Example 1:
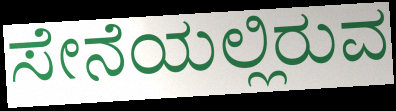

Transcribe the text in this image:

ಸೇನೆಯಲ್ಲಿರುವ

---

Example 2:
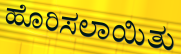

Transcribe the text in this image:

ಹೊರಿಸಲಾಯಿತು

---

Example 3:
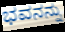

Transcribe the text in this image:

ಭವನನ್ನು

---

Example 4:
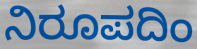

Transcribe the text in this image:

ನಿರೂಪದಿಂ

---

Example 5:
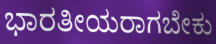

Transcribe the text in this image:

ಭಾರತೀಯರಾಗಬೇಕು